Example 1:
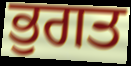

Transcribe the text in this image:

ਭੁਗਤ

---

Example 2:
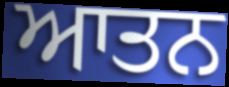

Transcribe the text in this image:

ਆਤਨ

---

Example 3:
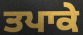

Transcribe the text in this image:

ਤਪਾਕੇ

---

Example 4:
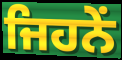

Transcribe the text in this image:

ਜਿਹਨੇਂ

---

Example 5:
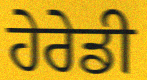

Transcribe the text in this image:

ਹੇਰੇਡੀ